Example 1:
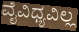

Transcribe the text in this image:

ವೈವಿಧ್ಯವಿಲ್ಲ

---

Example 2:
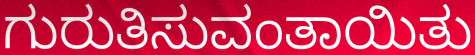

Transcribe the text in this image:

ಗುರುತಿಸುವಂತಾಯಿತು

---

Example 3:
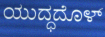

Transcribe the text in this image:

ಯುದ್ಧದೊಳ್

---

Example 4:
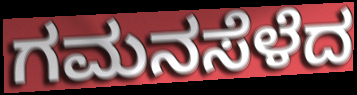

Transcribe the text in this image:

ಗಮನಸೆಳೆದ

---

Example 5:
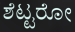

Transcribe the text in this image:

ಶೆಟ್ಟರೋ